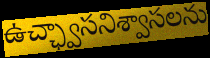
ఉచ్ఛ్వాసనిశ్వాసలను